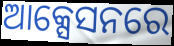
ଆକ୍ସେସନରେ